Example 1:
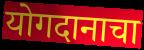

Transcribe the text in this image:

योगदानाचा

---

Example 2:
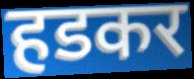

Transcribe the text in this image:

हडकर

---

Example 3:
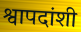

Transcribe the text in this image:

श्वापदांशी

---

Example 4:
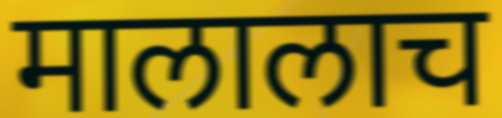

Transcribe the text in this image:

मालालाच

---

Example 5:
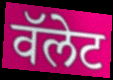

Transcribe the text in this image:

वॅलेट